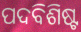
ପଦବିଶିଷ୍ଟ